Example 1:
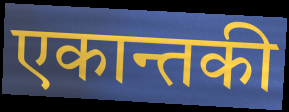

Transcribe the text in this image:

एकान्तकी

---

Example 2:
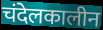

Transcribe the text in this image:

चंदेलकालीन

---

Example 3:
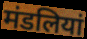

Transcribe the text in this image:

मंडलियां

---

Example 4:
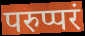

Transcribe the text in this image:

परुप्परं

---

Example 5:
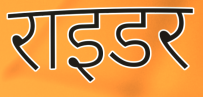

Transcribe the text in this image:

राइडर